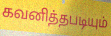
கவனித்தபடியும்